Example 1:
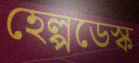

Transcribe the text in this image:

হেল্পডেস্ক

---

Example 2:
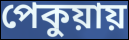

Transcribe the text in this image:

পেকুয়ায়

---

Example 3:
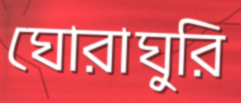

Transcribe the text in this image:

ঘোরাঘুরি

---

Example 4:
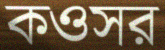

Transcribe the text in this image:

কওসর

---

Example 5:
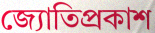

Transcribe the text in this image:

জ্যোতিপ্রকাশ